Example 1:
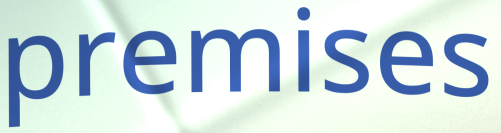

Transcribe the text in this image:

premises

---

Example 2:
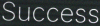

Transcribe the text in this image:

Success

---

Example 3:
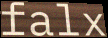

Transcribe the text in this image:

falx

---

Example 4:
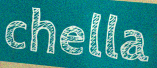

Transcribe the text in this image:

chella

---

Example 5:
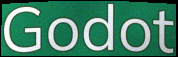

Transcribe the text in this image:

Godot